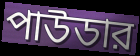
পাউডার